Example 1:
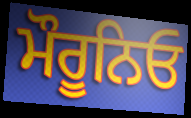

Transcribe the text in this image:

ਮੌਰੂਨਿਓ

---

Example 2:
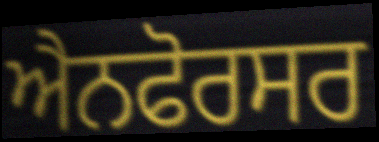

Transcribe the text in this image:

ਐਨਫੋਰਸਰ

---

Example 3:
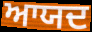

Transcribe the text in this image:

ਆਯਦ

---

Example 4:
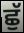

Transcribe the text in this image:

ਛੁੱ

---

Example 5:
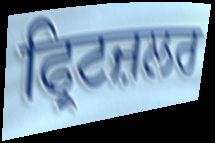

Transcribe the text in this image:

ਫ੍ਰਿਟਜ਼ਲਰ